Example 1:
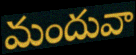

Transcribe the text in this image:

మందువా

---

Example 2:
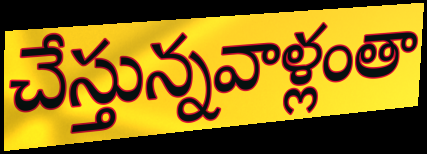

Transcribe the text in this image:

చేస్తున్నవాళ్లంతా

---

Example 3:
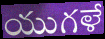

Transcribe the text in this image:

యుగళే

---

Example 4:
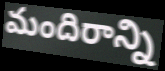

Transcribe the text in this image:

మందిరాన్ని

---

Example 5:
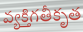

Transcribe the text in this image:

వ్యక్తిగతీకృత